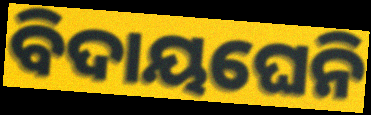
ବିଦାୟଘେନି